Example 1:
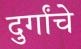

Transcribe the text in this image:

दुर्गांचे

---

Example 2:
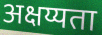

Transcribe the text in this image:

अक्षय्यता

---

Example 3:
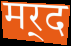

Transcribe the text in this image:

मर्द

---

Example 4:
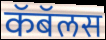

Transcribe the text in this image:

कॅबॅलस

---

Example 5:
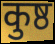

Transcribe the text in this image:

कुष्ठ